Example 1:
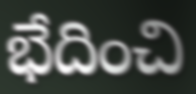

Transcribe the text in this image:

భేదించి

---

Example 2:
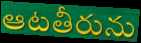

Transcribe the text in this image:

ఆటతీరును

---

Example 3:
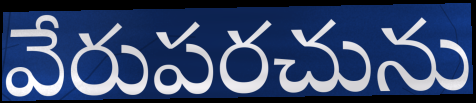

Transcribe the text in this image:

వేరుపరచును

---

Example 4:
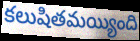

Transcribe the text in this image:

కలుషితమయ్యింది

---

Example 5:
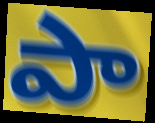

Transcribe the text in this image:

పా